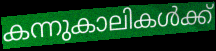
കന്നുകാലികൾക്ക്